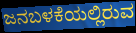
ಜನಬಳಕೆಯಲ್ಲಿರುವ